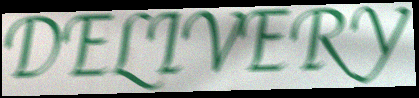
DELIVERY